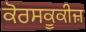
ਕੋਰਸਕੂਕੀਜ਼